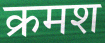
क्रमश